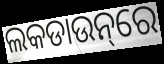
ଲକଡାଉନ୍‌ରେ